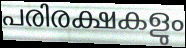
പരിരക്ഷകളും